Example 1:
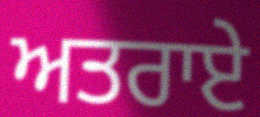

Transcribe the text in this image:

ਅਤਰਾਏ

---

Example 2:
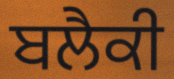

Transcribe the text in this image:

ਬਲੈਕੀ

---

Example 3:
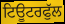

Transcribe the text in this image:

ਟਿਊਟਰਫੁੱਲ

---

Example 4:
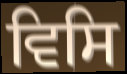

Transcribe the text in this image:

ਵਿਸਿ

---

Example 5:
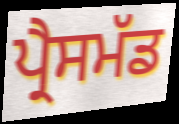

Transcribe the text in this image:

ਪ੍ਰੈਸਮੱਡ